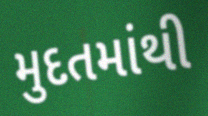
મુદતમાંથી